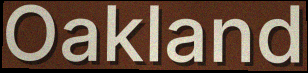
Oakland